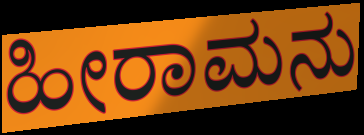
ಹೀರಾಮನು